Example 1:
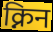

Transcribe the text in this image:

क्निन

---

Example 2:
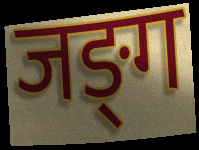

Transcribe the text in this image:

जङ्ग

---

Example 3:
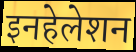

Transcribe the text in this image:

इनहेलेशन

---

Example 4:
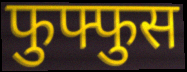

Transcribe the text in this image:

फुफ्फुस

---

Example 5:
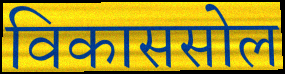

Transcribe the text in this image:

विकाससोल